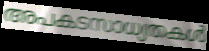
അപകടസാധ്യതകൾ